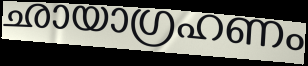
ഛായാഗ്രഹണം